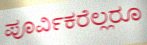
ಪೂರ್ವಿಕರೆಲ್ಲರೂ